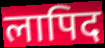
लापिद